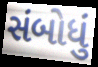
સંબોધું